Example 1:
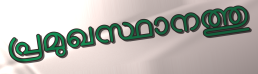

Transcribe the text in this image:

പ്രമുഖസ്ഥാനത്തു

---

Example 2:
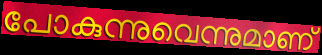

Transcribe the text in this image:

പോകുന്നുവെന്നുമാണ്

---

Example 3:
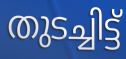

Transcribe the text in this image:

തുടച്ചിട്ട്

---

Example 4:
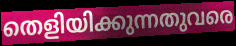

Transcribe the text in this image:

തെളിയിക്കുന്നതുവരെ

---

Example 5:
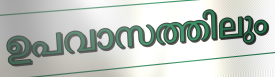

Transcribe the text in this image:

ഉപവാസത്തിലും